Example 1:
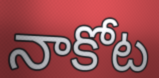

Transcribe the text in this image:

నాకోట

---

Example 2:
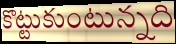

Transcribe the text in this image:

కొట్టుకుంటున్నది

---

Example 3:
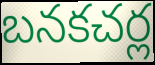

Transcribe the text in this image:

బనకచర్ల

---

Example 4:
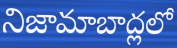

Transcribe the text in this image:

నిజామాబాద్లలో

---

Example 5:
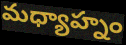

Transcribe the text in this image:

మధ్యాహ్నం